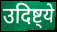
उदिष्ट्ये